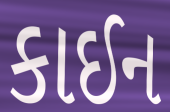
કાઈન